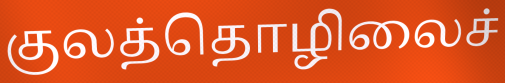
குலத்தொழிலைச்